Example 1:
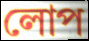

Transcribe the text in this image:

লোপ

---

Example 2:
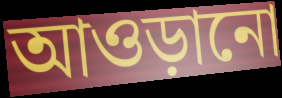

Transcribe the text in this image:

আওড়ানো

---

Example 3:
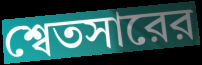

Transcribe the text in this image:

শ্বেতসারের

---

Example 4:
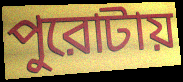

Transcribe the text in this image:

পুরোটায়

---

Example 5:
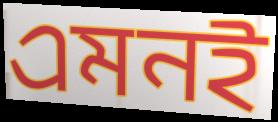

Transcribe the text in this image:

এমনই